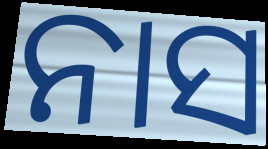
ନାସ